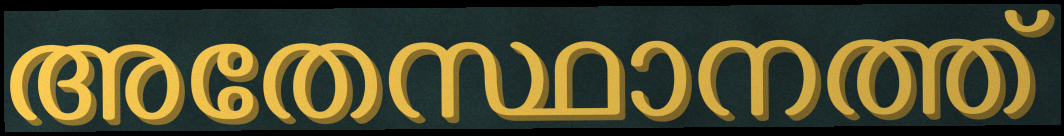
അതേസ്ഥാനത്ത്